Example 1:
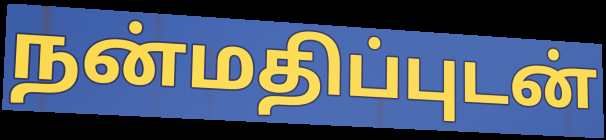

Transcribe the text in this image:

நன்மதிப்புடன்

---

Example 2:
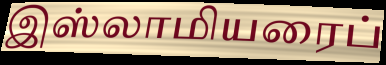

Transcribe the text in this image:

இஸ்லாமியரைப்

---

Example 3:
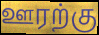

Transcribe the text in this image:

ஊரற்கு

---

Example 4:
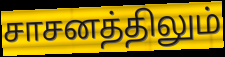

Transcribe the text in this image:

சாசனத்திலும்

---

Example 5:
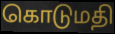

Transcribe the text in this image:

கொடுமதி